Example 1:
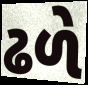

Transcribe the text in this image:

ઢળે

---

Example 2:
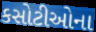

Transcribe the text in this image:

કસોટીઓના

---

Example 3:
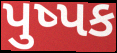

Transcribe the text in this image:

પુષ્પક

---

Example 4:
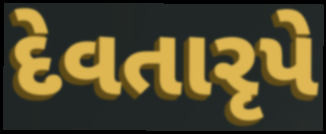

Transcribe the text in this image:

દેવતારૃપે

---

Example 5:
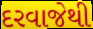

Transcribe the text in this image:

દરવાજેથી